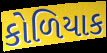
કોળિયાક